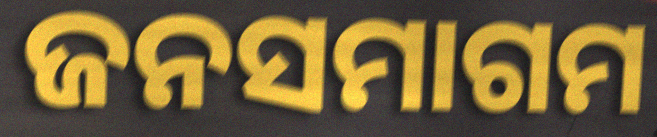
ଜନସମାଗମ